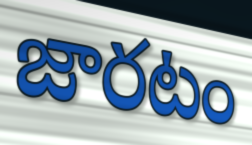
జారటం